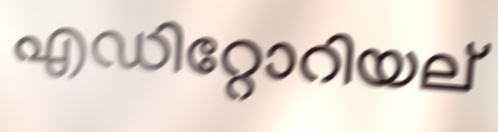
എഡിറ്റോറിയല്